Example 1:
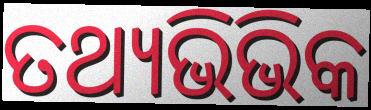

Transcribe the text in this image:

ତଥ୍ୟଭିଭିକ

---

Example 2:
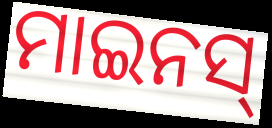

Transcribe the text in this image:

ମାଇନସ୍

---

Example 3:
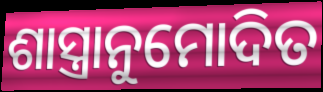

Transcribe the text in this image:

ଶାସ୍ତ୍ରାନୁମୋଦିତ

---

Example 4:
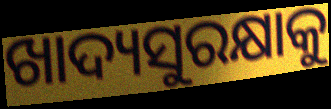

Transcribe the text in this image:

ଖାଦ୍ୟସୁରକ୍ଷାକୁ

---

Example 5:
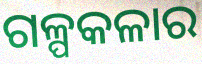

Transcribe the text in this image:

ଗଳ୍ପକଳାର